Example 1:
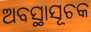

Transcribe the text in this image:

ଅବସ୍ଥାସୂଚକ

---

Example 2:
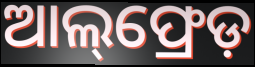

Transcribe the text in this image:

ଆଲ୍‌ଫ୍ରେଡ଼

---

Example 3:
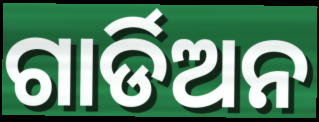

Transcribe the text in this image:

ଗାର୍ଡିଅନ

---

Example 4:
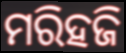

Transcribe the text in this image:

ମରିହଜି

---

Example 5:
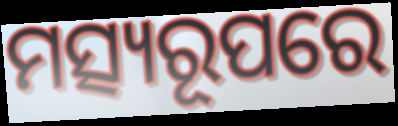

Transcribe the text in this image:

ମତ୍ସ୍ୟରୂପରେ